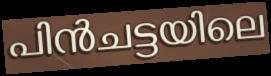
പിൻചട്ടയിലെ